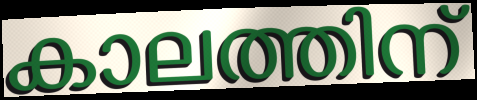
കാലത്തിന്